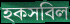
হকসবিল